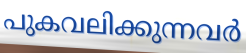
പുകവലിക്കുന്നവർ